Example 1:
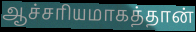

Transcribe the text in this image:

ஆச்சரியமாகத்தான்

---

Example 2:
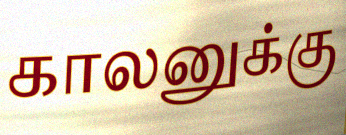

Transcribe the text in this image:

காலனுக்கு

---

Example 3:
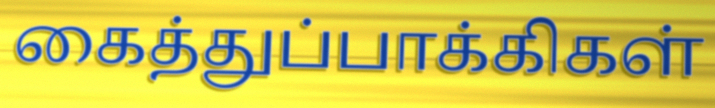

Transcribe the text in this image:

கைத்துப்பாக்கிகள்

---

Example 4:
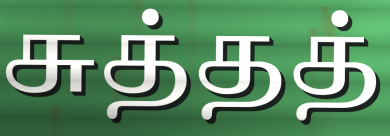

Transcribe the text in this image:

சுத்தத்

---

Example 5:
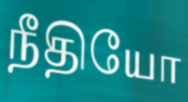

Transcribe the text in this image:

நீதியோ